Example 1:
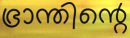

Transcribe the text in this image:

ഭ്രാന്തിന്റെ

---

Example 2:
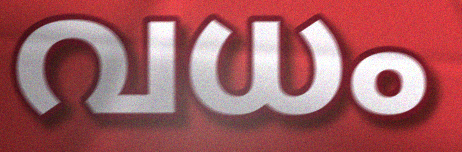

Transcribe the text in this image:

വധം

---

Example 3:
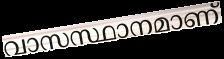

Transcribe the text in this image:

വാസസ്ഥാനമാണ്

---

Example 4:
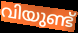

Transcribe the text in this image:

വിയുണ്ട്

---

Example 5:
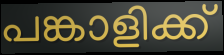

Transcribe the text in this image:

പങ്കാളിക്ക്